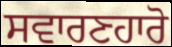
ਸਵਾਰਣਹਾਰੋ